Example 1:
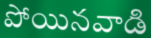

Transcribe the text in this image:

పోయినవాడి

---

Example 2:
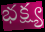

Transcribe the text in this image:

భక్ష్య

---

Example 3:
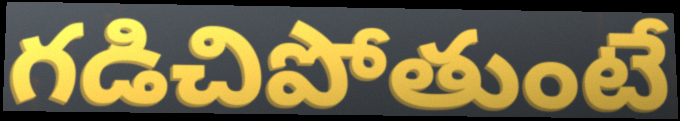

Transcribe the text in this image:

గడిచిపోతుంటే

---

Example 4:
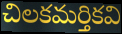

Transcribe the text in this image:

చిలకమర్తికవి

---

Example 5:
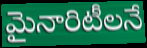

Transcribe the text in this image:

మైనారిటీలనే